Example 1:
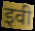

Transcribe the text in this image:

इवी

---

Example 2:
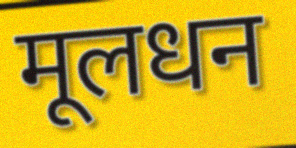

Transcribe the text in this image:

मूलधन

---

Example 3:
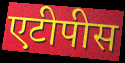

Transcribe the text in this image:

एटीपीस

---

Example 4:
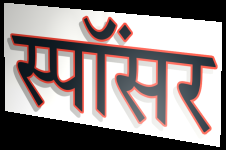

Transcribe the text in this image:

स्पॉंसर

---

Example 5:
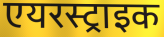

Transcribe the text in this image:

एयरस्ट्राइक